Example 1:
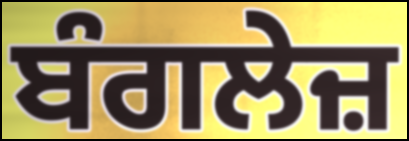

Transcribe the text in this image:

ਬੰਗਲੇਜ਼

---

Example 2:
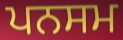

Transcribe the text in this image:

ਪਨਸਮ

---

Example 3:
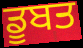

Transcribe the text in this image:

ਡੂਬਤ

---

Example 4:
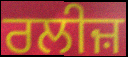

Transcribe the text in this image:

ਰਲੀਜ਼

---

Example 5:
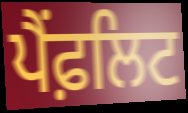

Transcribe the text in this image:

ਪੈਂਫ਼ਲਿਟ